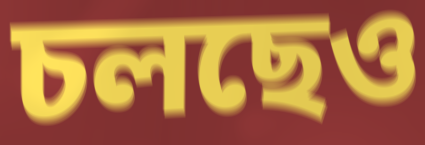
চলছেও